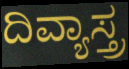
ದಿವ್ಯಾಸ್ತ್ರ